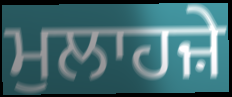
ਮੁਲਾਹਜ਼ੇ